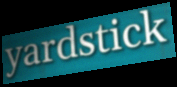
yardstick